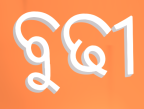
ବୁଢୀ